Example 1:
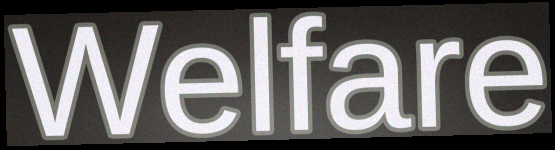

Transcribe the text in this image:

Welfare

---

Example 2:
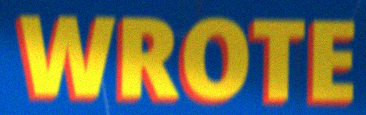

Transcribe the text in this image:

WROTE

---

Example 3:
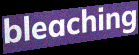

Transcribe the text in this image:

bleaching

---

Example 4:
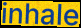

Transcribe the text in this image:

inhale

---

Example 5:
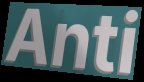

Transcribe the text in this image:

Anti